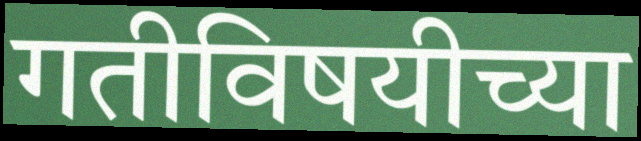
गतीविषयीच्या